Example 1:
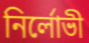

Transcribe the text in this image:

নির্লোভী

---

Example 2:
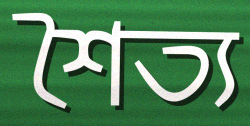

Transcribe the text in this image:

শৈত্য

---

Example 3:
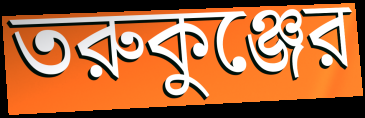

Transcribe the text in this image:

তরুকুঞ্জের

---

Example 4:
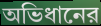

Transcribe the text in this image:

অভিধানের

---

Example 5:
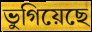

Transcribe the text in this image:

ভুগিয়েছে